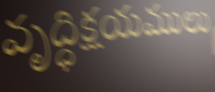
వృద్ధిక్షయములు